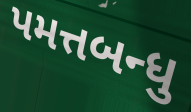
પમત્તબન્ધુ